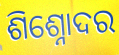
ଶିଶ୍ନୋଦର